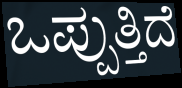
ಒಪ್ಪುತ್ತಿದೆ